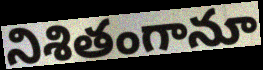
నిశితంగానూ